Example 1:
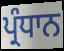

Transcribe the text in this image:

ਪ੍ਰੰਧਾਨ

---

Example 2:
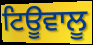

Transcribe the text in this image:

ਟਿਊਵਾਲੂ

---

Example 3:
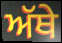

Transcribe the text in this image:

ਅੱਥੇ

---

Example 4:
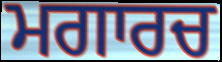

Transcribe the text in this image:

ਮਗਾਰਚ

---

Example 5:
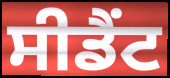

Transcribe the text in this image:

ਸੀਡੈਂਟ